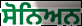
ਸੋਨਿਅਨ